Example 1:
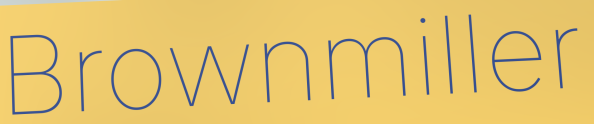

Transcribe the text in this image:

Brownmiller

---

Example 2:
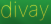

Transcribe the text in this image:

divay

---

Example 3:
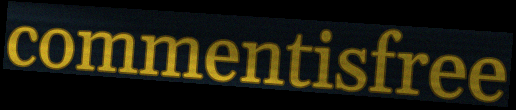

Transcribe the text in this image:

commentisfree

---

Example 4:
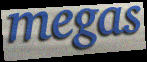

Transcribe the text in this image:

megas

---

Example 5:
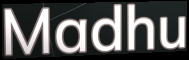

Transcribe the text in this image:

Madhu